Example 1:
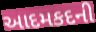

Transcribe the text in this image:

આદમકદની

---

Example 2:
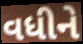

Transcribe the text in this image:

વધીને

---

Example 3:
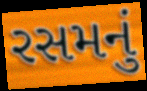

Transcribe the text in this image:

રસમનું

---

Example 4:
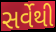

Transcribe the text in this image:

સર્વેથી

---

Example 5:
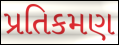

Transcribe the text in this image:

પ્રતિકમણ